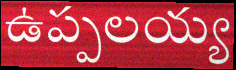
ఉప్పలయ్య